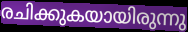
രചിക്കുകയായിരുന്നു